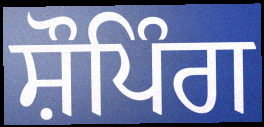
ਸ਼ੌਪਿੰਗ